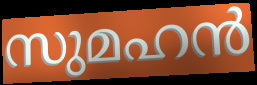
സുമഹൻ